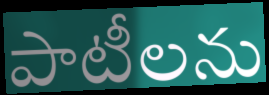
పాటీలను